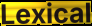
Lexical